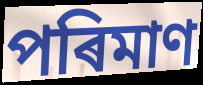
পৰিমাণ